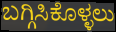
ಬಗ್ಗಿಸಿಕೊಳ್ಳಲು